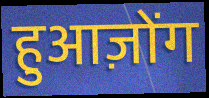
हुआज़ोंग